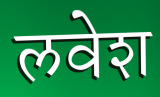
लवेश